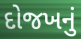
દોજખનું